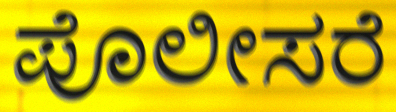
ಪೊಲೀಸರೆ